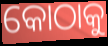
କୋଠାକୁ